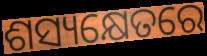
ଶସ୍ୟକ୍ଷେତରେ